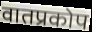
वातप्रकोप